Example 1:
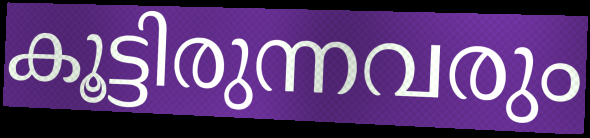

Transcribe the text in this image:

കൂട്ടിരുന്നവരും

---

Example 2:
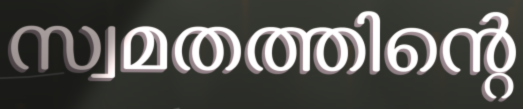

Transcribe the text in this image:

സ്വമതത്തിന്റെ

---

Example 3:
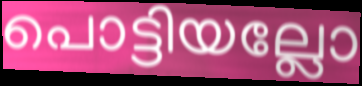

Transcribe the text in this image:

പൊട്ടിയല്ലോ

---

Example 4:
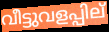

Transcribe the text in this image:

വീട്ടുവളപ്പില്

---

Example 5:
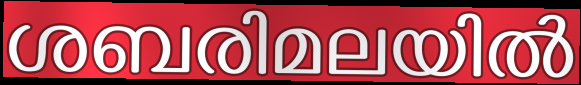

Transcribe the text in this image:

ശബരിമലയിൽ